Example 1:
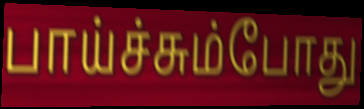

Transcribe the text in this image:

பாய்ச்சும்போது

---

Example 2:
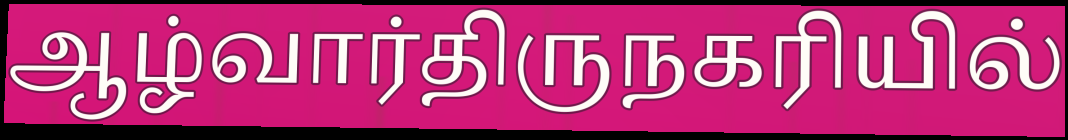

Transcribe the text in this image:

ஆழ்வார்திருநகரியில்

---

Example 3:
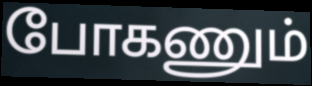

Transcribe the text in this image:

போகணும்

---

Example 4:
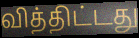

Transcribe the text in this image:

வித்திட்டது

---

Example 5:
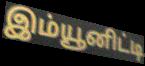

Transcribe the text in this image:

இம்யூனிட்டி